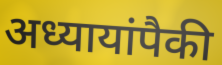
अध्यायांपैकी